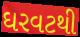
ઘરવટથી